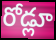
రోడ్లూ